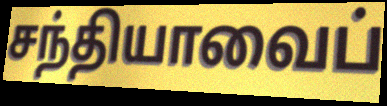
சந்தியாவைப்